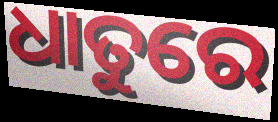
ଧାତୁରେ